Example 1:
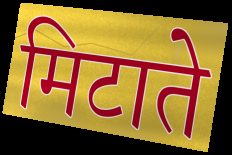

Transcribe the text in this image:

मिटाते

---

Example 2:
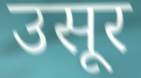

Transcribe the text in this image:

उसूर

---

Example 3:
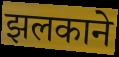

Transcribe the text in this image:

झलकाने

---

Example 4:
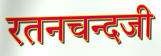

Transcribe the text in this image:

रतनचन्दजी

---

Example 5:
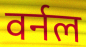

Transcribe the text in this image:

वर्नल